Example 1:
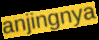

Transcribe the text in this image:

anjingnya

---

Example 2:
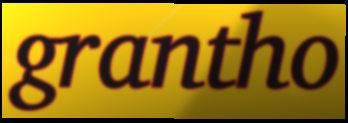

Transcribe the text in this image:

grantho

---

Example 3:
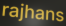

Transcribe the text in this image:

rajhans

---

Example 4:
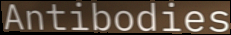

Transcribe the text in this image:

Antibodies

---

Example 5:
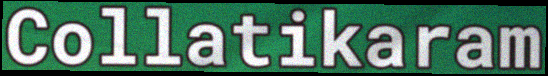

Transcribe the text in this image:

Collatikaram